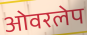
ओवरलेप